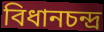
বিধানচন্দ্র